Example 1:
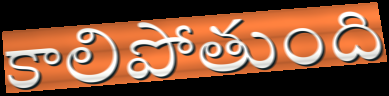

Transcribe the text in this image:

కాలిపోతుంది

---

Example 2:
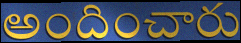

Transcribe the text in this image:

అందించారు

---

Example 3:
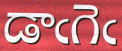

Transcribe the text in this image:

డాఁగెఁ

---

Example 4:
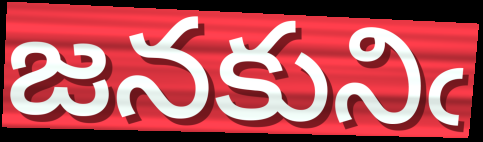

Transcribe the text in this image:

జనకునిఁ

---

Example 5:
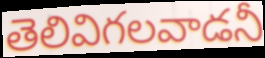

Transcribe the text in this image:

తెలివిగలవాడనీ